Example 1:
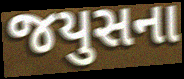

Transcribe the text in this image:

જયુસના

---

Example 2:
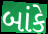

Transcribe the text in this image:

બાંકે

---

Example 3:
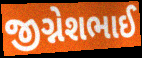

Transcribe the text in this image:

જીગ્નેશભાઈ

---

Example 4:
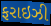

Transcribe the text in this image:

ફરાઇઝી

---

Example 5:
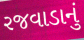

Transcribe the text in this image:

રજવાડાનું